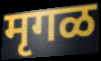
मृगळ